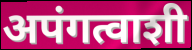
अपंगत्वाशी